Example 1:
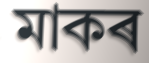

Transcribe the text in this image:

মাকৰ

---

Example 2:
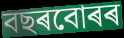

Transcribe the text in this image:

বছৰবোৰৰ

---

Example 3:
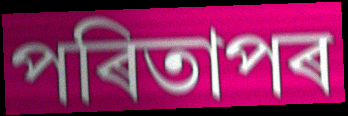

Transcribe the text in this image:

পৰিতাপৰ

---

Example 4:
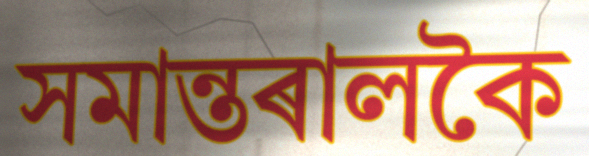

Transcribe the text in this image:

সমান্তৰালকৈ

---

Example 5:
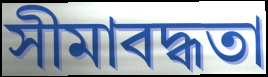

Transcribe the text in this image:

সীমাবদ্ধতা